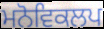
ਮਨੋਵਿਕਲਪ